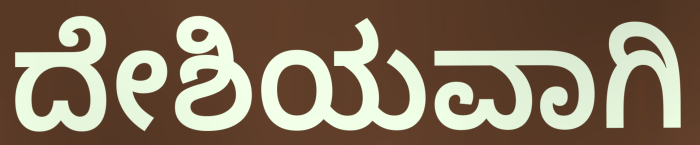
ದೇಶಿಯವಾಗಿ